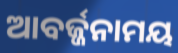
ଆବର୍ଜ୍ଜନାମୟ